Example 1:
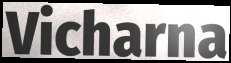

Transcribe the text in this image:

Vicharna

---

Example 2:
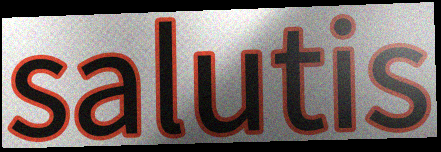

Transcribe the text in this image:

salutis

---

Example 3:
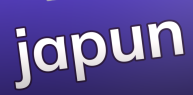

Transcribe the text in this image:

japun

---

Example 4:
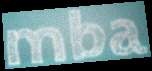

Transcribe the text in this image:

mba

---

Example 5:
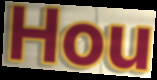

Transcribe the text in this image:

Hou